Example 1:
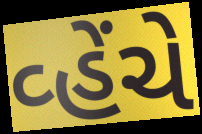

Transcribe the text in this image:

વ્હેંચે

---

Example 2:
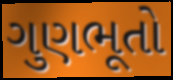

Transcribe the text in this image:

ગુણભૂતો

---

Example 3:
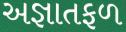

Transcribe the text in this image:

અજ્ઞાતફળ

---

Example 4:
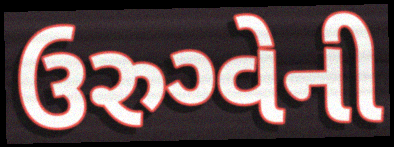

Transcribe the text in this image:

ઉરુગ્વેની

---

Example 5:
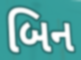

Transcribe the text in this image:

બિન